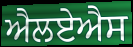
ਐਲਏਐਸ